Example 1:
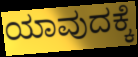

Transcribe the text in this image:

ಯಾವುದಕ್ಕೆ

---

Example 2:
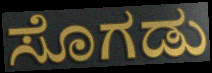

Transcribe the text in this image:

ಸೊಗಡು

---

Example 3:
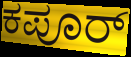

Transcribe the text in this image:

ಕಪೂರ್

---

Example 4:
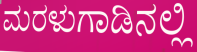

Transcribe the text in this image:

ಮರಳುಗಾಡಿನಲ್ಲಿ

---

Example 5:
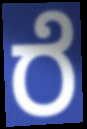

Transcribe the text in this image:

ರೆ